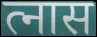
त्नास